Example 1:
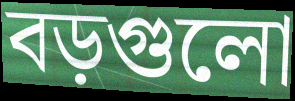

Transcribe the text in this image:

বড়গুলো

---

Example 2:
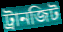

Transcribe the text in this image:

ট্রানজিট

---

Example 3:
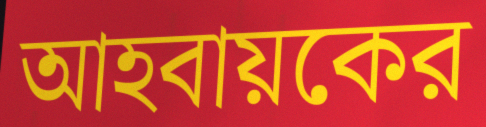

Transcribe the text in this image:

আহবায়কের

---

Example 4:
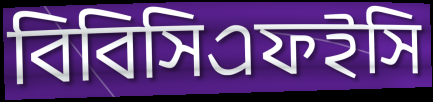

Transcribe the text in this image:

বিবিসিএফইসি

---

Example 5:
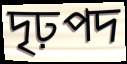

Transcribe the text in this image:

দৃঢ়পদ